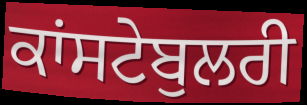
ਕਾਂਸਟੇਬੁਲਰੀ